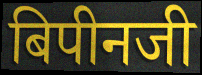
बिपीनजी